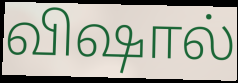
விஷால்